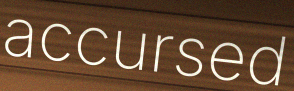
accursed